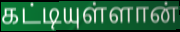
கட்டியுள்ளான்